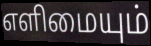
எளிமையும்